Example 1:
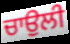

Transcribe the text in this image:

ਚਾਉਲੀ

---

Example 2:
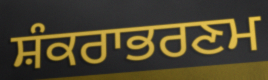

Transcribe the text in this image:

ਸ਼ੰਕਰਾਭਰਣਮ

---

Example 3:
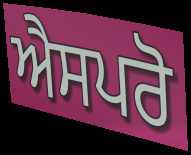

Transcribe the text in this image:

ਐਸਪਰੋ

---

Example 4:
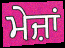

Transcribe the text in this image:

ਮੇਜ਼ਾਂ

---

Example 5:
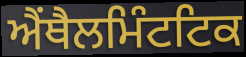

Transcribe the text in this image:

ਐਂਥੈਲਮਿੰਟਟਿਕ